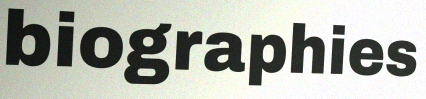
biographies